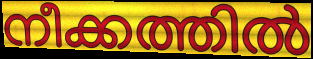
നീക്കത്തിൽ